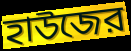
হাউজের